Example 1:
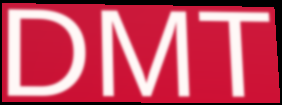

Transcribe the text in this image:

DMT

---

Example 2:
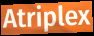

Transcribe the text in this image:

Atriplex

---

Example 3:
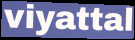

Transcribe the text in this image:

viyattal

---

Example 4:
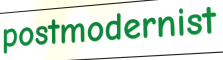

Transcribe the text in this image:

postmodernist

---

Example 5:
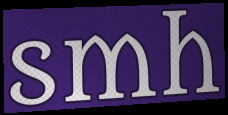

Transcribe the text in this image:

smh